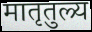
मातृतुल्य